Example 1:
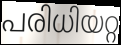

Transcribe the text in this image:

പരിധിയറ്റ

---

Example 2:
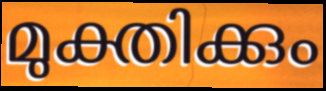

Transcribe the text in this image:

മുക്തിക്കും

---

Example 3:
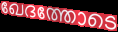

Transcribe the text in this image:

ഖേദത്തോടെ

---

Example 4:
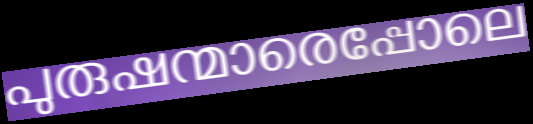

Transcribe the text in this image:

പുരുഷന്മാരെപ്പോലെ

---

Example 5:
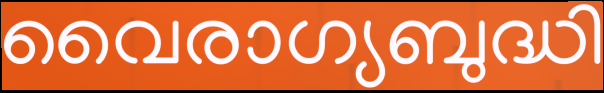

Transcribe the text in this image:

വൈരാഗ്യബുദ്ധി